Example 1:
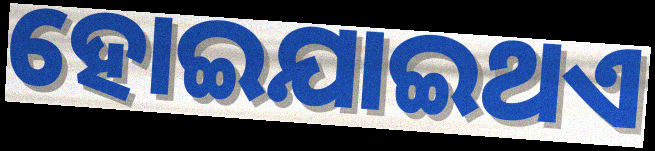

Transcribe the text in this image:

ହୋଇଯାଇଥଏ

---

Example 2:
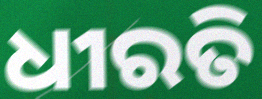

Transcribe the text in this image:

ଧୀରତି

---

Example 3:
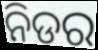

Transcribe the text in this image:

ନିଡର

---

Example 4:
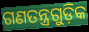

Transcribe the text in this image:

ଗଣତନ୍ତ୍ରଗୁଡ଼ିକ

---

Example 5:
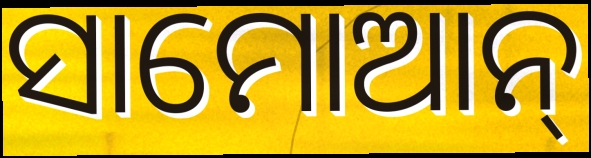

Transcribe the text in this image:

ସାମୋଆନ୍